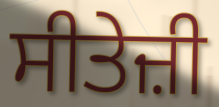
ਸੀਤੇਜ਼ੀ